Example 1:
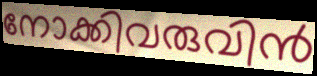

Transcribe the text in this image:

നോക്കിവരുവിൻ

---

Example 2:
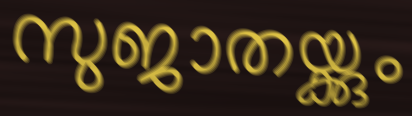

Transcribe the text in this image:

സുജാതയ്ക്കും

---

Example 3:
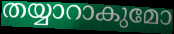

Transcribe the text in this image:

തയ്യാറാകുമോ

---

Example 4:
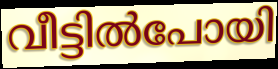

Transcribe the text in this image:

വീട്ടിൽപോയി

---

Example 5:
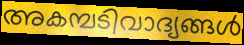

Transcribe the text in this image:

അകമ്പടിവാദ്യങ്ങൾ